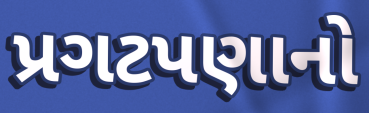
પ્રગટપણાનો